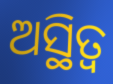
ଅସ୍ଥିତ୍ୱ